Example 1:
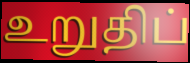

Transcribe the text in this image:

உறுதிப்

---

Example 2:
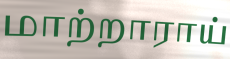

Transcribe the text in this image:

மாற்றாராய்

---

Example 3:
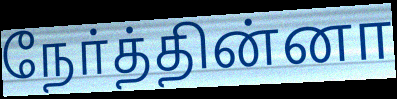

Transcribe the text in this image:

நேர்த்தின்னா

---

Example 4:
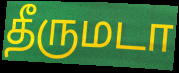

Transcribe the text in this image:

தீருமடா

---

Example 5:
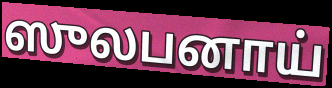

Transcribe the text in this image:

ஸுலபனாய்